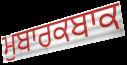
ਮੁਬਾਰਕਬਾਕ